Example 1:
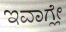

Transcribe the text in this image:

ಇವಾಗ್ಲೇ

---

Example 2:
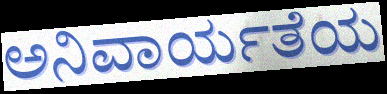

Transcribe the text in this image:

ಅನಿವಾರ್ಯತೆಯ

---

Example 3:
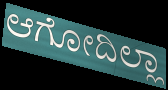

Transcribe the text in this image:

ಆಗೋದಿಲ್ಲಾ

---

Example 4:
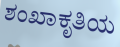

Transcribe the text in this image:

ಶಂಖಾಕೃತಿಯ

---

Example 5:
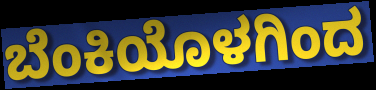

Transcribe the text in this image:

ಬೆಂಕಿಯೊಳಗಿಂದ